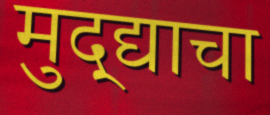
मुद्द्याचा